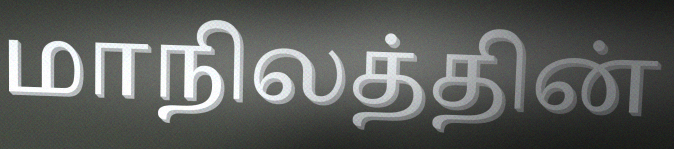
மாநிலத்தின்